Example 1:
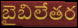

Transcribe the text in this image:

బైబిలేతర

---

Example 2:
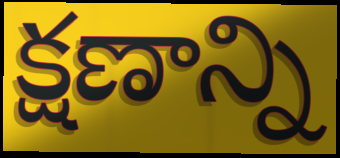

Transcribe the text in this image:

క్షణాన్ని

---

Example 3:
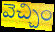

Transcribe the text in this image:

వెచ్చిం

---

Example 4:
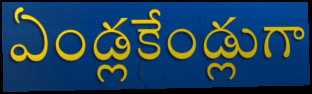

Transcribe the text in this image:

ఏండ్లకేండ్లుగా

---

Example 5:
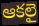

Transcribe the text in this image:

ఆకలై